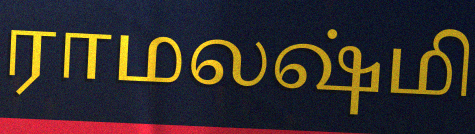
ராமலஷ்மி